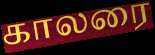
காலரை